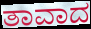
ತಾವಾದ